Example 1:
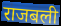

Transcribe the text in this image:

राजबली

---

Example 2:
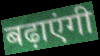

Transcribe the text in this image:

बढ़ाएंगी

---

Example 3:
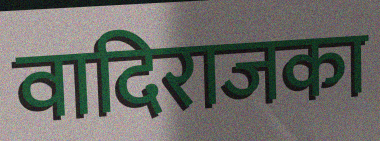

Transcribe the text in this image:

वादिराजका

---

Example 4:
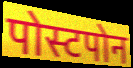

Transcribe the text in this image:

पोस्टपोन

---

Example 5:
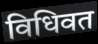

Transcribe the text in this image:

विधिवत